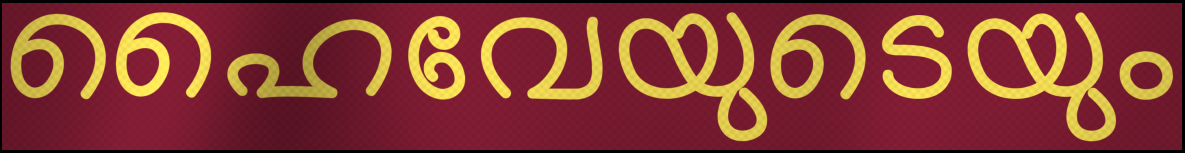
ഹൈവേയുടെയും